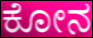
ಕೋನ